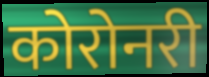
कोरोनरी